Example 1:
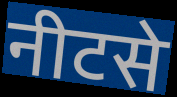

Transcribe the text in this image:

नीटसे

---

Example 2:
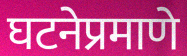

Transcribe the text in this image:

घटनेप्रमाणे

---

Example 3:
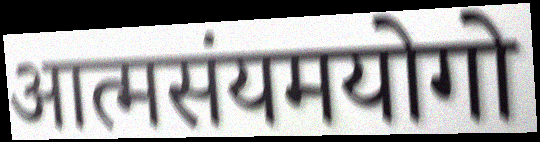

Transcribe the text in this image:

आत्मसंयमयोगो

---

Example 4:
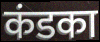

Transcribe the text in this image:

कंडका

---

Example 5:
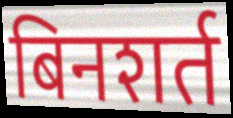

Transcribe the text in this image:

बिनशर्त